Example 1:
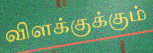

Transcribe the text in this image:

விளக்குக்கும்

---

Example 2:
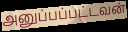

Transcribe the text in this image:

அனுப்பப்பட்டவன்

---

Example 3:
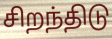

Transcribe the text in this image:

சிறந்திடு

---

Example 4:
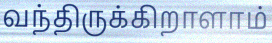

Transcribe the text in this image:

வந்திருக்கிறாளாம்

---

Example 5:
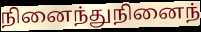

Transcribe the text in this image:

நினைந்துநினைந்